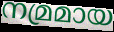
നമ്രമായ